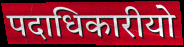
पदाधिकारीयो